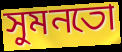
সুমনতো